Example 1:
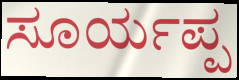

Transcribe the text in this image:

ಸೂರ್ಯಪ್ಪ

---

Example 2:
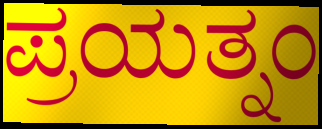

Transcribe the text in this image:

ಪ್ರಯತ್ನಂ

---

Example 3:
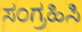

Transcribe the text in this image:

ಸಂಗ್ರಹಿಸಿ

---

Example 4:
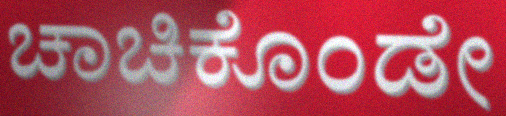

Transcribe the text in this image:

ಚಾಚಿಕೊಂಡೇ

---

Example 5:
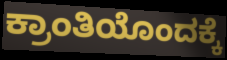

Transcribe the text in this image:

ಕ್ರಾಂತಿಯೊಂದಕ್ಕೆ